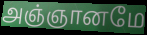
அஞ்ஞானமே